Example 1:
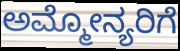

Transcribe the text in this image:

ಅಮ್ಮೋನ್ಯರಿಗೆ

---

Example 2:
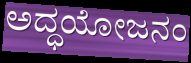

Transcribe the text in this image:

ಅದ್ಧಯೋಜನಂ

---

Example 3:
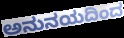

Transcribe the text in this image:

ಅನುನಯದಿಂದ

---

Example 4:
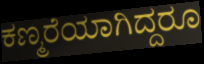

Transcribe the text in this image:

ಕಣ್ಮರೆಯಾಗಿದ್ದರೂ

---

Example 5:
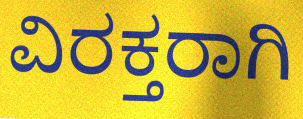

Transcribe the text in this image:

ವಿರಕ್ತರಾಗಿ